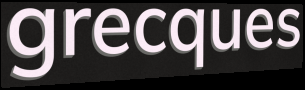
grecques